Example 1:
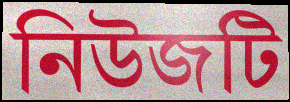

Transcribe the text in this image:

নিউজটি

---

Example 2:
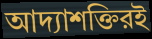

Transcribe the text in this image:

আদ্যাশক্তিরই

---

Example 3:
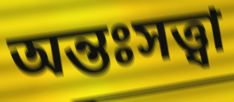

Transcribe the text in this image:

অন্তঃসত্ত্বা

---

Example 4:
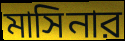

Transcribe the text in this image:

মাসিনার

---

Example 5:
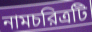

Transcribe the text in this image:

নামচরিত্রটি